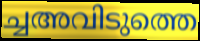
ച്ചഅവിടുത്തെ